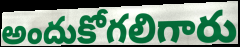
అందుకోగలిగారు